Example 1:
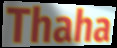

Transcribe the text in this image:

Thaha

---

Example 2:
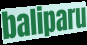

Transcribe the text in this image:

baliparu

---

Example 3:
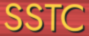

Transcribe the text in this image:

SSTC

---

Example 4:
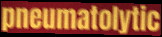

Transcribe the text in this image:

pneumatolytic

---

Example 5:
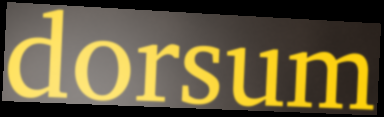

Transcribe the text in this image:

dorsum